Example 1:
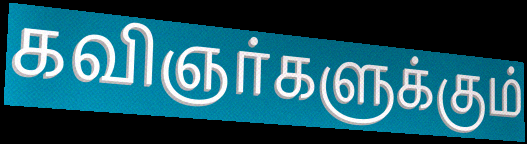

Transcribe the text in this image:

கவிஞர்களுக்கும்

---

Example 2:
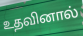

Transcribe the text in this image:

உதவினால்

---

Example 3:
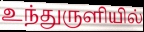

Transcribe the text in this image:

உந்துருளியில்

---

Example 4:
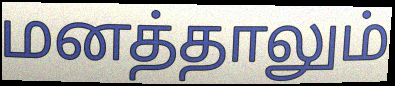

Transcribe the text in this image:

மனத்தாலும்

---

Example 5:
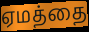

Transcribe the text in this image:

ஏமத்தை